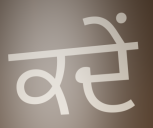
ਕਦੇਂ